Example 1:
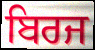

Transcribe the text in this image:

ਬਿਰਜ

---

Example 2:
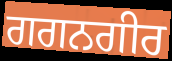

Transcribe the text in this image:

ਗਗਨਗੀਰ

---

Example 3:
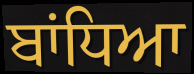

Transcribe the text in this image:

ਬਾਂਧਿਆ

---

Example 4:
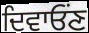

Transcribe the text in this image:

ਦਿਵਾਓੰਣ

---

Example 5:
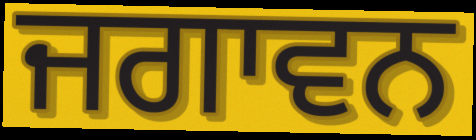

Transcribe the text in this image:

ਜਗਾਵਨ